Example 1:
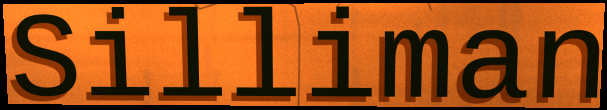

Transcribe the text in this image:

Silliman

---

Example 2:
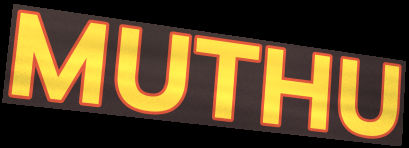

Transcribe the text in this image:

MUTHU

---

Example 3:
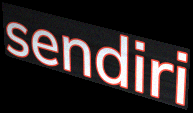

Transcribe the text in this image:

sendiri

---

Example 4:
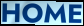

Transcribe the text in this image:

HOME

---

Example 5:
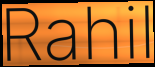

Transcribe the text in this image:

Rahil